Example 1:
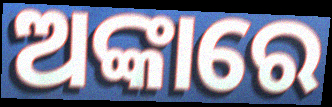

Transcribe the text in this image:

ଅଙ୍କାରେ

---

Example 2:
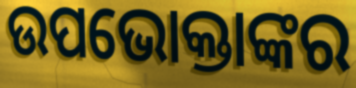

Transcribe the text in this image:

ଉପଭୋକ୍ତାଙ୍କର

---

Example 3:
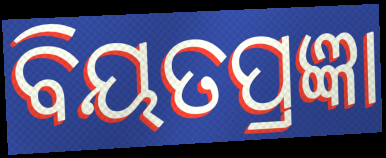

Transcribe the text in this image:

ବିୟତପ୍ରଜ୍ଞା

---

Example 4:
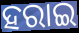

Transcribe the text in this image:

ହରାଇ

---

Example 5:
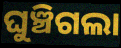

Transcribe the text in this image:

ଘୁଞ୍ଚିଗଲା